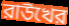
রাউখের